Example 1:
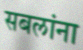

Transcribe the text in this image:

सबलांना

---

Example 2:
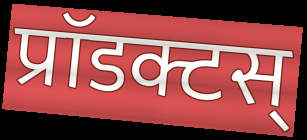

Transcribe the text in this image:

प्रॉडक्टस्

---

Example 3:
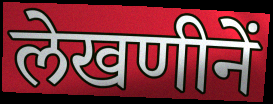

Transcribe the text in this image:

लेखणीनें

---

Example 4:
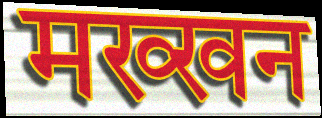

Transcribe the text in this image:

मख्खन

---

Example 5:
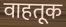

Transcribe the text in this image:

वाहतूक